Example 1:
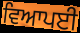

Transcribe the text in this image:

ਵਿਆਪਈ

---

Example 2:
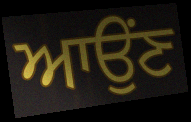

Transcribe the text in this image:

ਆਉਂਣ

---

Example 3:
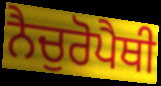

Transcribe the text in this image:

ਨੈਚੁਰੋਪੈਥੀ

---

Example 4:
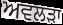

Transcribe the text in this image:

ਅਵਲੜਾ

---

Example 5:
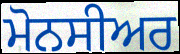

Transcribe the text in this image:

ਮੋਨਸੀਅਰ